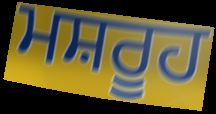
ਮਸ਼ਰੂਹ